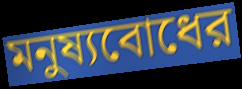
মনুষ্যবোধের